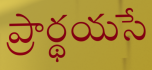
ప్రార్థయసే